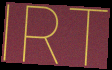
IRT